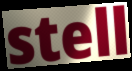
stell